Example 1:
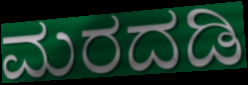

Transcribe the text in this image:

ಮರದಡಿ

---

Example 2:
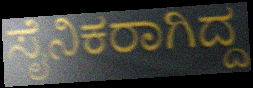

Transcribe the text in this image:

ಸೈನಿಕರಾಗಿದ್ದ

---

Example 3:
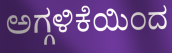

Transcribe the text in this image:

ಅಗ್ಗಳಿಕೆಯಿಂದ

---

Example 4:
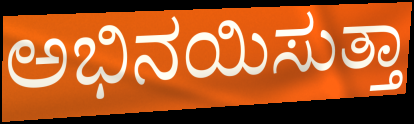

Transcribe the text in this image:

ಅಭಿನಯಿಸುತ್ತಾ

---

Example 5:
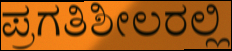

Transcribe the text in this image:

ಪ್ರಗತಿಶೀಲರಲ್ಲಿ